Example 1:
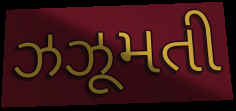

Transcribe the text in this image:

ઝઝૂમતી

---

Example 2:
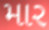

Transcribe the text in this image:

માર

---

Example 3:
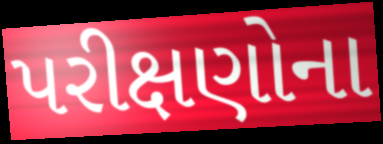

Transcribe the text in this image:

પરીક્ષણોના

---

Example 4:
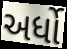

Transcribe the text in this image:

અર્ધો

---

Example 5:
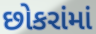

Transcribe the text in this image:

છોકરાંમાં